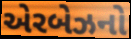
એરબેઝનો